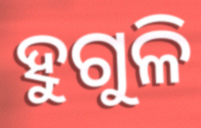
ହୁଗୁଳି